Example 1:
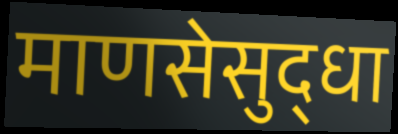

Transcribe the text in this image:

माणसेसुद्धा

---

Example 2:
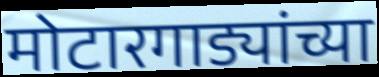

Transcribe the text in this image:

मोटारगाड्यांच्या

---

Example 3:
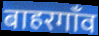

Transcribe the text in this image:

बाहरगाँव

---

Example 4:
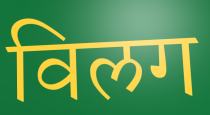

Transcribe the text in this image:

विलग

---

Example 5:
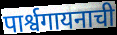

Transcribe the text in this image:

पार्श्वगायनाची